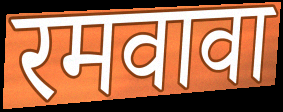
रमवावा